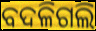
ବଦଳିଗଲି